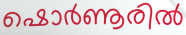
ഷൊർണൂരിൽ